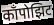
काँपोझिट